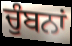
ਚੁੰਬਨਾਂ